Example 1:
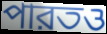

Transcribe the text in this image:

পারতও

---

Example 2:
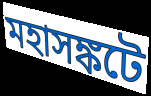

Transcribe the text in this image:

মহাসঙ্কটে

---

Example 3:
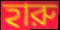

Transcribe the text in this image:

হারু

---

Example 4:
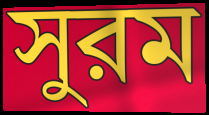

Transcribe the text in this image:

সুরম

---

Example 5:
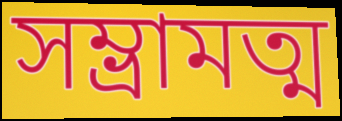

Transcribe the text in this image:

সম্ভ্রামত্ম